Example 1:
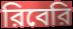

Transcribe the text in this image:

রিবেরি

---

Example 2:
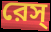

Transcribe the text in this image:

রেস্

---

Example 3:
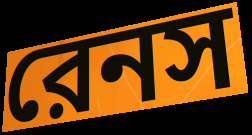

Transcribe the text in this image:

রেনস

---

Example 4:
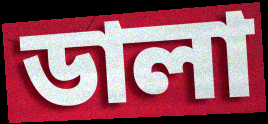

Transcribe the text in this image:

ডালা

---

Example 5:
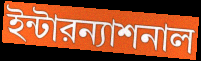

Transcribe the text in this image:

ইন্টারন্যাশনাল